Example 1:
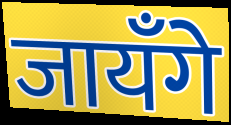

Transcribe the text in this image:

जायँगे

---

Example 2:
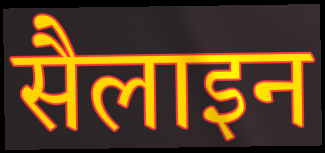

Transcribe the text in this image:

सैलाइन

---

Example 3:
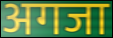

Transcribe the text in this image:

अगजा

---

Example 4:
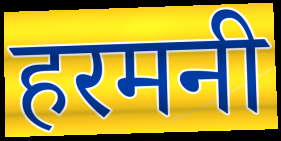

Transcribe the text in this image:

हरमनी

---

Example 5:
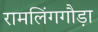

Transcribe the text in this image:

रामलिंगगौड़ा